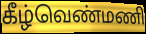
கீழ்வெண்மணி